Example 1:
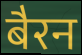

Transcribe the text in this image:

बैरन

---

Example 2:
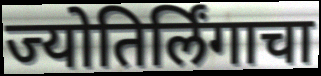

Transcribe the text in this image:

ज्योतिर्लिंगाचा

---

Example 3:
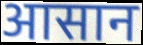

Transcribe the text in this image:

आसान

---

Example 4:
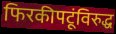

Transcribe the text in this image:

फिरकीपटूंविरुद्ध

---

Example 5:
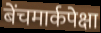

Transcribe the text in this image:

बेंचमार्कपेक्षा